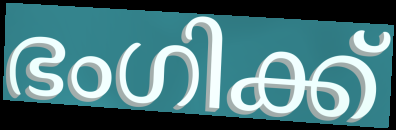
ഭംഗിക്ക്